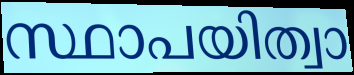
സ്ഥാപയിത്വാ